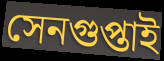
সেনগুপ্তাই